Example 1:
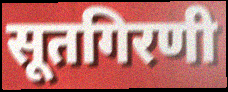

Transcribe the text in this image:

सूतगिरणी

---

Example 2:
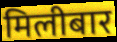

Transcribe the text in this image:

मिलीबार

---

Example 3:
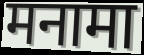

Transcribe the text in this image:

मनामा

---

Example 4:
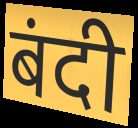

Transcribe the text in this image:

बंदी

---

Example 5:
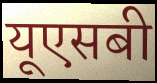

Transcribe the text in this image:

यूएसबी